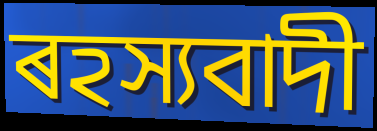
ৰহস্যবাদী